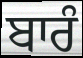
ਬਾਰੰ